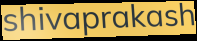
shivaprakash